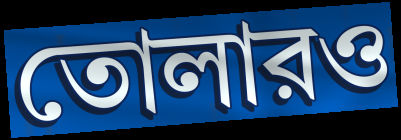
তোলারও